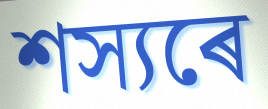
শস্যৰে